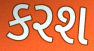
કરશ